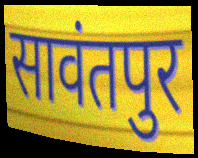
सावंतपुर